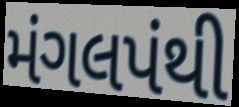
મંગલપંથી